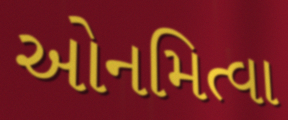
ઓનમિત્વા